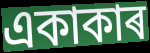
একাকাৰ